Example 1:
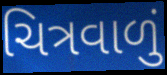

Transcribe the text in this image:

ચિત્રવાળું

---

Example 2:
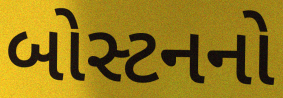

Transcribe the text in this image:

બોસ્ટનનો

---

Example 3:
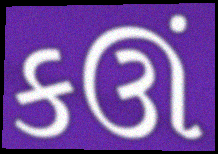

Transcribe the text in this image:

કઊં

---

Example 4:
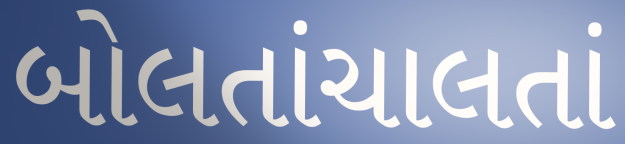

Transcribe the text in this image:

બોલતાંચાલતાં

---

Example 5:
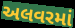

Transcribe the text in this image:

અલવરમાં